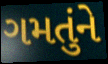
ગમતુંને